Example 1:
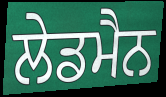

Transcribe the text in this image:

ਲੇਡਮੈਨ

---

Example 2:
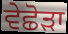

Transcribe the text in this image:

ਵੇਛੋੜਾ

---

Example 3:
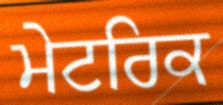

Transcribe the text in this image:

ਮੇਟਰਿਕ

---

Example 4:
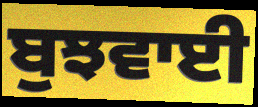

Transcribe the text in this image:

ਬੁਝਵਾਈ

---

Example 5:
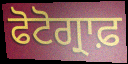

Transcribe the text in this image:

ਫੋਟੋਗ੍ਰਾਫ਼